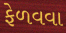
ફેળવવા